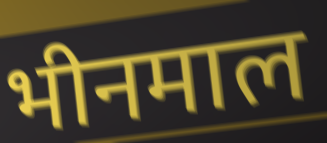
भीनमाल